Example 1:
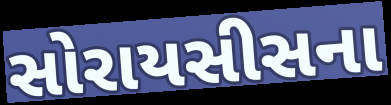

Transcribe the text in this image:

સોરાયસીસના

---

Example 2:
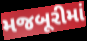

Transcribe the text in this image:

મજબૂરીમાં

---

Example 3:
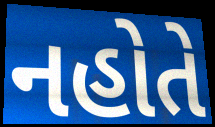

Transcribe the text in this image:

નહોતે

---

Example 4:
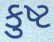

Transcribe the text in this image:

કુષ્ટ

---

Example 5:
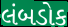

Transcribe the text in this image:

લંબડોક